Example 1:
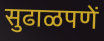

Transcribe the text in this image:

सुढाळपणें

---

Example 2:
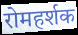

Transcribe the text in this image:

रोमहर्शक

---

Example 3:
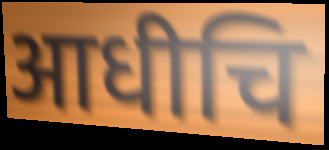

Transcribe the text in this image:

आधीचि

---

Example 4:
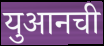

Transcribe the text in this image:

युआनची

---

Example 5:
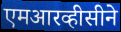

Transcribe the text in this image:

एमआरव्हीसीने